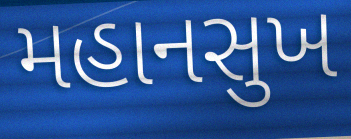
મહાનસુખ